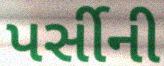
પર્સીની